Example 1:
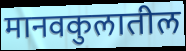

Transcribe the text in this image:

मानवकुलातील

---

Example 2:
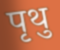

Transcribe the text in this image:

पृथु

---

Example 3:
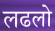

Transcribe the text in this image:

लढलो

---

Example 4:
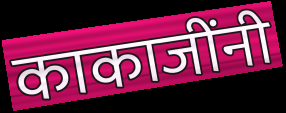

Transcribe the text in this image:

काकाजींनी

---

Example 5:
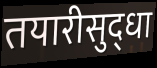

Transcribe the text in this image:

तयारीसुद्धा